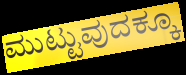
ಮುಟ್ಟುವುದಕ್ಕೂ